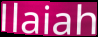
Ilaiah